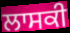
ਲਾਸਕੀ